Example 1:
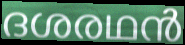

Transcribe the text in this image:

ദശരഥൻ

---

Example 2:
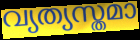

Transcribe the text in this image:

വ്യത്യസ്തമാ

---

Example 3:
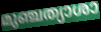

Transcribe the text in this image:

മുഞ്ചത്യാശാ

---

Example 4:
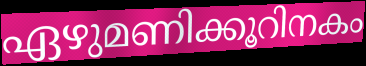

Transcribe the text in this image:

ഏഴുമണിക്കൂറിനകം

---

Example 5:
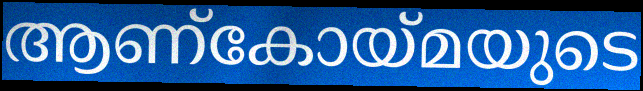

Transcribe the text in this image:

ആണ്കോയ്മയുടെ